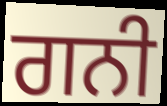
ਗਨੀ